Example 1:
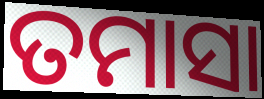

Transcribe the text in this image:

ତମାସା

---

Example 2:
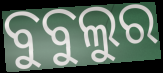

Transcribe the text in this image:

ବୁବୁଲୁର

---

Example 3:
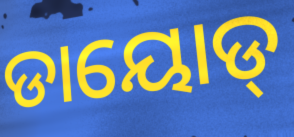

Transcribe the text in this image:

ଡାୟୋଡ୍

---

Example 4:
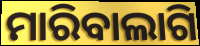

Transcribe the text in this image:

ମାରିବାଲାଗି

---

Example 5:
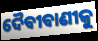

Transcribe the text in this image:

ଦୈବୀବାଣୀକୁ